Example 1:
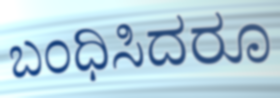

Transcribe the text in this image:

ಬಂಧಿಸಿದರೂ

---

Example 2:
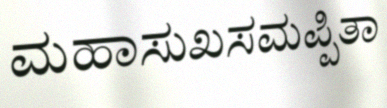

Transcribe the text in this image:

ಮಹಾಸುಖಸಮಪ್ಪಿತಾ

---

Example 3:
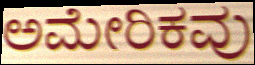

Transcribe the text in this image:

ಅಮೇರಿಕವು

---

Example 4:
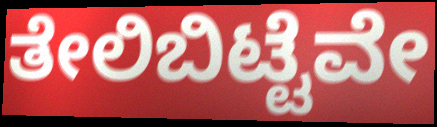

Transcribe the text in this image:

ತೇಲಿಬಿಟ್ಟೆವೇ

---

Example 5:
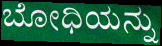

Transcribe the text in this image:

ಬೋಧಿಯನ್ನು